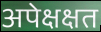
अपेक्षक्षत